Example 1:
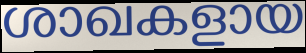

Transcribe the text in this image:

ശാഖകളായ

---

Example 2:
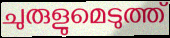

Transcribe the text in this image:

ചുരുളുമെടുത്ത്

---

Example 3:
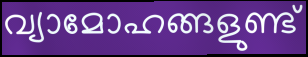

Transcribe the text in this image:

വ്യാമോഹങ്ങളുണ്ട്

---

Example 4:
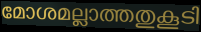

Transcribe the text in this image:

മോശമല്ലാത്തതുകൂടി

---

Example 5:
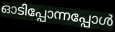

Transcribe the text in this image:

ഓടിപ്പോന്നപ്പോൾ